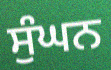
ਸੁੰਘਨ